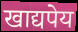
खाद्यपेय